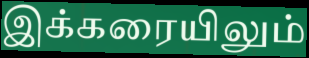
இக்கரையிலும்